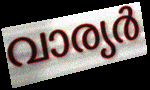
വാര്യർ